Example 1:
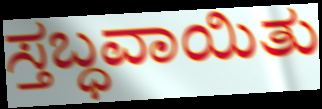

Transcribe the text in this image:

ಸ್ತಬ್ಧವಾಯಿತು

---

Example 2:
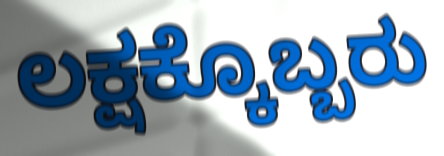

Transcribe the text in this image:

ಲಕ್ಷಕ್ಕೊಬ್ಬರು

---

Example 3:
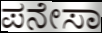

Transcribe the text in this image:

ಪನೇಸಾ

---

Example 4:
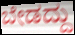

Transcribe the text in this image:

ಬೇಡದ್ದು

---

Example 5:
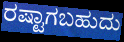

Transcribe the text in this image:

ರಷ್ಟಾಗಬಹುದು